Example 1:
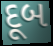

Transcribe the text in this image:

દૂબ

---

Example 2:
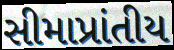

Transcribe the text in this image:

સીમાપ્રાંતીય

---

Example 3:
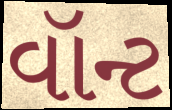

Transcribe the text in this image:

વૉન્ટ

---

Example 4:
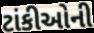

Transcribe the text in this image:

ટાંકીઓની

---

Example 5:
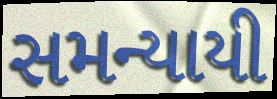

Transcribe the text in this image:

સમન્યાયી